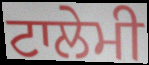
ਟਾਲੇਮੀ